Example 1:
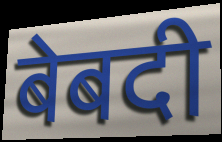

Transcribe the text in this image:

बेबदी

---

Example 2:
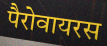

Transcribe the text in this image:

पैरोवायरस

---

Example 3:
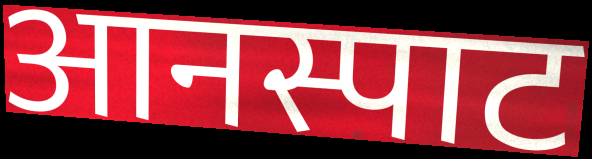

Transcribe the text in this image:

आनस्पाट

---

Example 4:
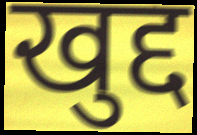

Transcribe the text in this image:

खुद्द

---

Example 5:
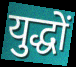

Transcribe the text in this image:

युद्धों